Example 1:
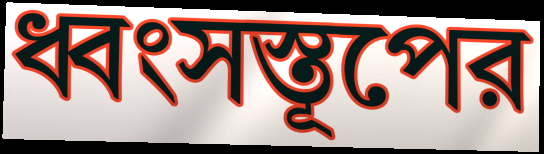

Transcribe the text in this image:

ধ্বংসস্তূপের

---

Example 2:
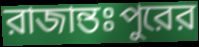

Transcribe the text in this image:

রাজান্তঃপুরের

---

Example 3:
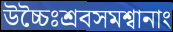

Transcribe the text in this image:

উচ্চৈঃশ্রবসমশ্বানাং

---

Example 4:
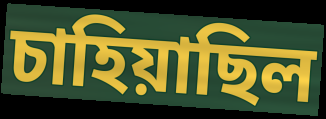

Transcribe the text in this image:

চাহিয়াছিল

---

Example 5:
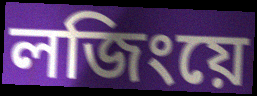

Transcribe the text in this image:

লজিংয়ে